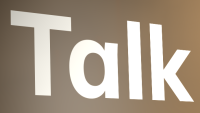
Talk